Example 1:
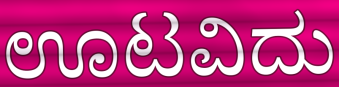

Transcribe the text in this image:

ಊಟವಿದು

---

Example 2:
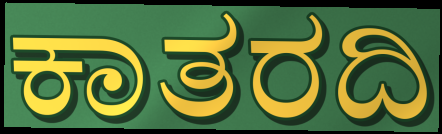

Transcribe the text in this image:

ಕಾತರದಿ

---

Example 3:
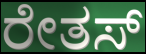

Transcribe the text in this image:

ರೇತಸ್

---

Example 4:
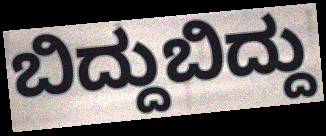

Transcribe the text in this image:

ಬಿದ್ದುಬಿದ್ದು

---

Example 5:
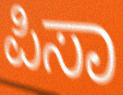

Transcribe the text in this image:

ಪಿಸಾ